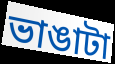
ভাঙাটা